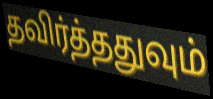
தவிர்த்ததுவும்